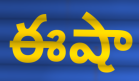
ఈషా